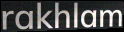
rakhlam